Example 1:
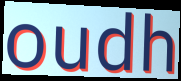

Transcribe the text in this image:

oudh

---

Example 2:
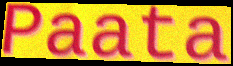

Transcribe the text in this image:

Paata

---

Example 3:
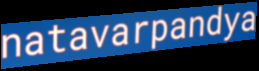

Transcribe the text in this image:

natavarpandya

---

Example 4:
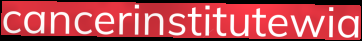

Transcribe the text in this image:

cancerinstitutewia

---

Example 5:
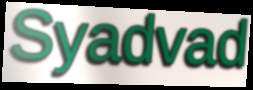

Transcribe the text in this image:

Syadvad